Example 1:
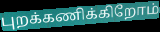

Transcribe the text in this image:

புறக்கணிக்கிறோம்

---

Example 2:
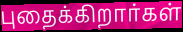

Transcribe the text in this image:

புதைக்கிறார்கள்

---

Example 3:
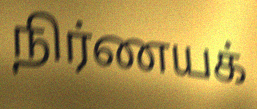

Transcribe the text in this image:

நிர்ணயக்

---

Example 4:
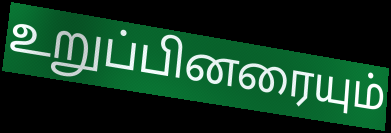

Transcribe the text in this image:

உறுப்பினரையும்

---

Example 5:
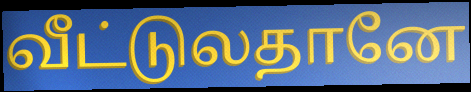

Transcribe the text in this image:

வீட்டுலதானே